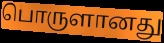
பொருளானது